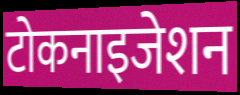
टोकनाइजेशन